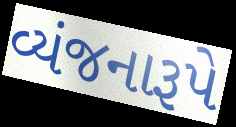
વ્યંજનારૂપે